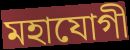
মহাযোগী